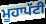
ਮੂਹਾਪੱਟੀ